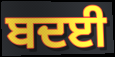
ਬਦਈ